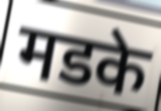
मडके